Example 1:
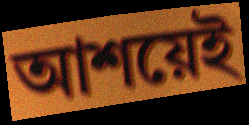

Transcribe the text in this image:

আশয়েই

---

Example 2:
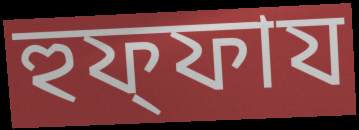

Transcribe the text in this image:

হুফ্ফায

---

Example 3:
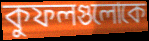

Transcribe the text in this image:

কুফলগুলোকে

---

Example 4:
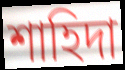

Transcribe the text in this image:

শাহিদা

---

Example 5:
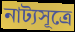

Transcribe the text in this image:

নাট্যসূত্রে